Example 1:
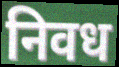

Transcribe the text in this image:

निवध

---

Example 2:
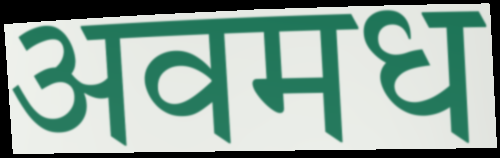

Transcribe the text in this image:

अवमध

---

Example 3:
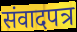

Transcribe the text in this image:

संवादपत्र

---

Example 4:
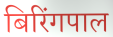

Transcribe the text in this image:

बिरिंगपाल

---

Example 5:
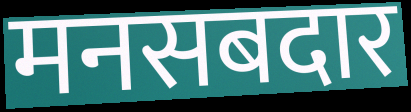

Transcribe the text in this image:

मनसबदार